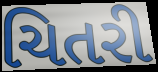
ચિતરી